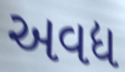
અવદ્ય